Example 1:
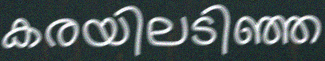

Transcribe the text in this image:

കരയിലടിഞ്ഞ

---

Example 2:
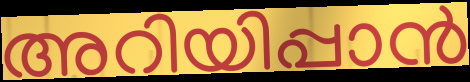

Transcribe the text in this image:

അറിയിപ്പാൻ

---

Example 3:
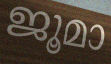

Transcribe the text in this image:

ജൂമാ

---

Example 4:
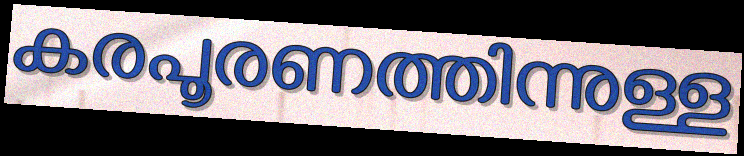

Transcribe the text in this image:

കരപൂരണത്തിന്നുള്ള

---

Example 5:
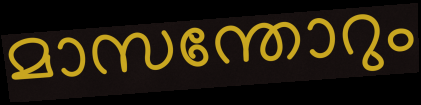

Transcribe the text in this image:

മാസന്തോറും